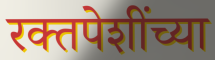
रक्तपेशींच्या